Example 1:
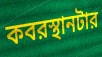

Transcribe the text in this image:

কবরস্থানটার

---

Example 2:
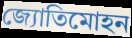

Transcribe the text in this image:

জ্যোতিমোহন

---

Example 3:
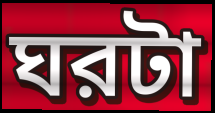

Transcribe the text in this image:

ঘরটা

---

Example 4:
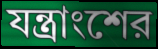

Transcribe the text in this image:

যন্ত্রাংশের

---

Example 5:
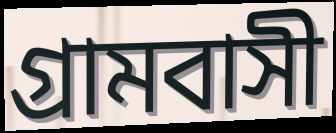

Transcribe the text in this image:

গ্রামবাসী